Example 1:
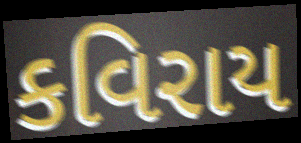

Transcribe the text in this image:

કવિરાય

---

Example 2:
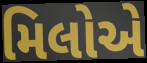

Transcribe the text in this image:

મિલોએ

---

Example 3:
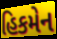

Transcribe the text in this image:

હિકમેન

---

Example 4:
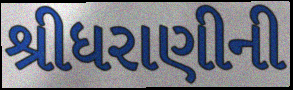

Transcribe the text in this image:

શ્રીધરાણીની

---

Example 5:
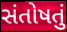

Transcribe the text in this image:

સંતોષતું